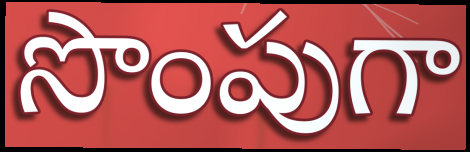
సొంపుగా